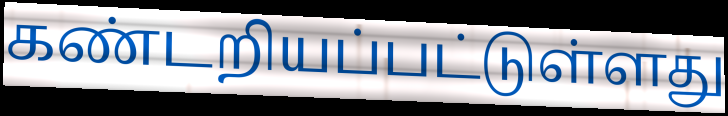
கண்டறியப்பட்டுள்ளது